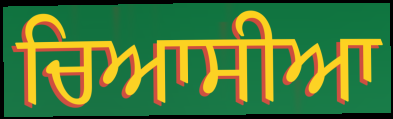
ਚਿਆਸੀਆ